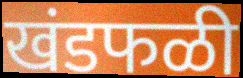
खंडफळी